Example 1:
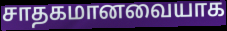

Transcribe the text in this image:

சாதகமானவையாக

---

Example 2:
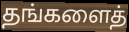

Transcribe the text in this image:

தங்களைத்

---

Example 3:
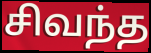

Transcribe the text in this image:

சிவந்த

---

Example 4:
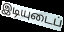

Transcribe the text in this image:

இடியுடைப்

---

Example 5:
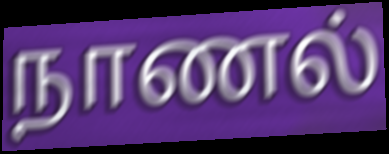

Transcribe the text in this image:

நாணல்